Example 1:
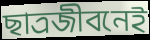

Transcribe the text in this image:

ছাত্রজীবনেই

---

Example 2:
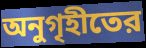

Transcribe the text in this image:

অনুগৃহীতের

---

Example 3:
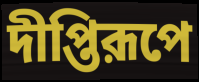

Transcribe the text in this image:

দীপ্তিরূপে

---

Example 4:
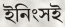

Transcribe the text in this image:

ইনিংসই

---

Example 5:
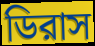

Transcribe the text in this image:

ডিরাস